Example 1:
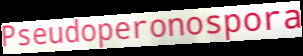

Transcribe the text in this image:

Pseudoperonospora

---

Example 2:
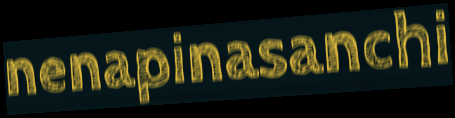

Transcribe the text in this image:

nenapinasanchi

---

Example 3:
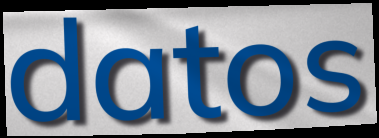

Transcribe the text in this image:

datos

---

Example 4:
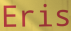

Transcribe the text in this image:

Eris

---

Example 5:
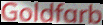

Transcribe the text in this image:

Goldfarb